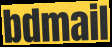
bdmail